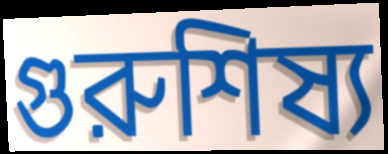
গুরুশিষ্য